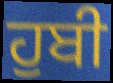
ਹੁਬੀ